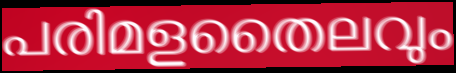
പരിമളതൈലവും